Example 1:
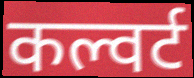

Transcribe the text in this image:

कल्वर्ट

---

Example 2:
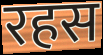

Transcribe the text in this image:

रहस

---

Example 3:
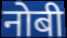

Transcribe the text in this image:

नोबी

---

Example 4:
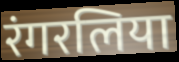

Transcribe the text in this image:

रंगरलिया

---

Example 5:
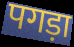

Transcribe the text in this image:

पगड़ा